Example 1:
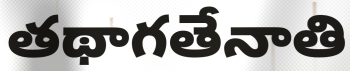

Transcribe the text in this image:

తథాగతేనాతి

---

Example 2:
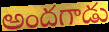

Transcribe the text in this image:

అందగాడు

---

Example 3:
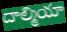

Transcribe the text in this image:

దాల్మియా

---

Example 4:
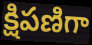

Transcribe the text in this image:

క్షిపణిగా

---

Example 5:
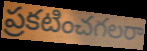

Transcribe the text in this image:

ప్రకటించగలరా